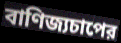
বাণিজ্যচাপের